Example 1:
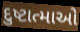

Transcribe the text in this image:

દુષ્ટાત્માઓ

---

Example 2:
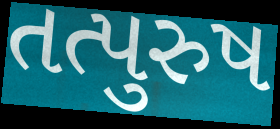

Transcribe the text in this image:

તત્પુરુષ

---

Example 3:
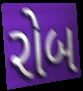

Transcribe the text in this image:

રોબ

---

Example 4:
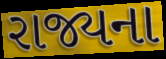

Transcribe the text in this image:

રાજ્યના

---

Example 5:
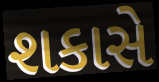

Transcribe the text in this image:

શકાસે